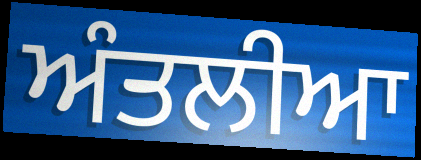
ਅੰਤਲੀਆ